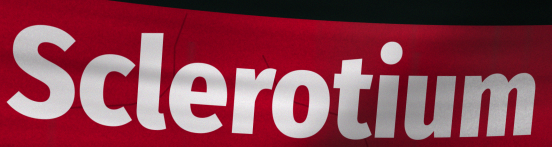
Sclerotium